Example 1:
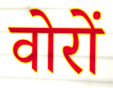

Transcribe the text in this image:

वोरों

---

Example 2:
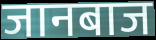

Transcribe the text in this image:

जानबाज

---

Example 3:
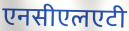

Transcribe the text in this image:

एनसीएलएटी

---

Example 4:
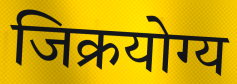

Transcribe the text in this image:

जिक्रयोग्य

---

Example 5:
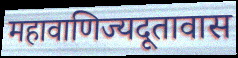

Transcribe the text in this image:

महावाणिज्यदूतावास